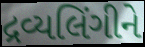
દ્રવ્યલિંગીને